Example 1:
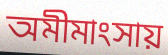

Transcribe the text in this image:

অমীমাংসায়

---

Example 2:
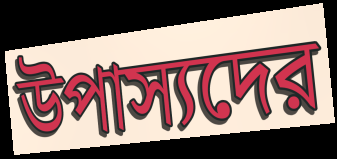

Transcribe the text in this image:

উপাস্যদের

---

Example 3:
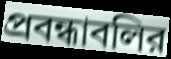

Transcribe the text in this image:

প্রবন্ধাবলির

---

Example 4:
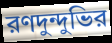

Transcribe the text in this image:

রণদুন্দুভির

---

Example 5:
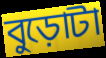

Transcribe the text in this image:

বুড়োটা